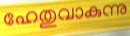
ഹേതുവാകുന്നു